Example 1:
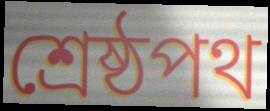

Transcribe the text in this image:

শ্রেষ্ঠপথ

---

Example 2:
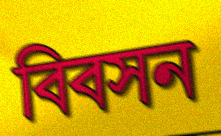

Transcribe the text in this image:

বিবসন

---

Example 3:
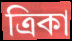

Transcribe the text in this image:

ত্রিকা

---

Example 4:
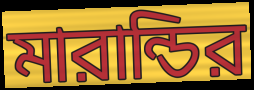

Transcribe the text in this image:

মারান্ডির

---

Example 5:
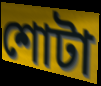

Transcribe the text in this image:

শোটা